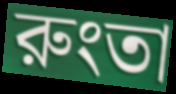
রুংতা